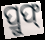
ପ୍ରୁଫ୍